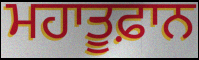
ਮਹਾਤੂਫ਼ਾਨ